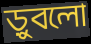
ড়ুবলো